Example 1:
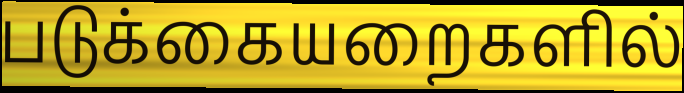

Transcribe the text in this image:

படுக்கையறைகளில்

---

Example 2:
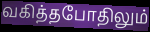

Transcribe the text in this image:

வகித்தபோதிலும்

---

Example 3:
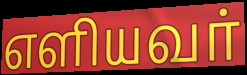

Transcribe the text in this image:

எளியவர்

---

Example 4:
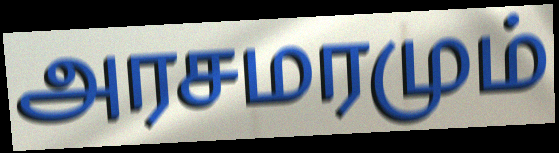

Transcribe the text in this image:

அரசமரமும்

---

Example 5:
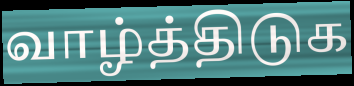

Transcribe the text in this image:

வாழ்த்திடுக